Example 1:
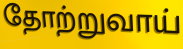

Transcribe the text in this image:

தோற்றுவாய்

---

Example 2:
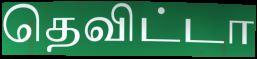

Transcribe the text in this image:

தெவிட்டா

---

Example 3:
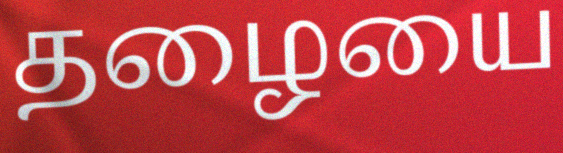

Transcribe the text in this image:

தழையை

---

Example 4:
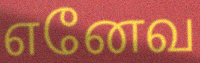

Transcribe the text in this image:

எனேவ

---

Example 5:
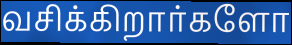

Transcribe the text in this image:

வசிக்கிறார்களோ